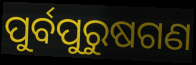
ପୁର୍ବପୁରୁଷଗଣ